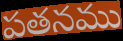
పతనము